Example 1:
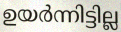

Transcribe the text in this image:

ഉയർന്നിട്ടില്ല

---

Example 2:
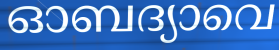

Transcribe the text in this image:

ഓബദ്യാവെ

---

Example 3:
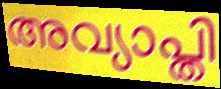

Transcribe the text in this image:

അവ്യാപ്തി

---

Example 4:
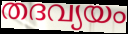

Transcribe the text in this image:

തദവ്യയം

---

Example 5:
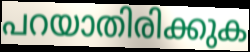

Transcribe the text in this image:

പറയാതിരിക്കുക